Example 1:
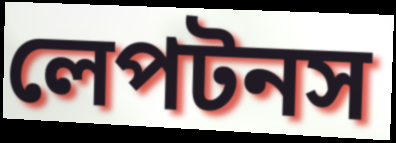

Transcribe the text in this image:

লেপটনস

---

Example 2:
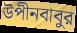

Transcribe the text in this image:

উপীনবাবুর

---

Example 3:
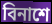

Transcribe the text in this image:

বিনাশে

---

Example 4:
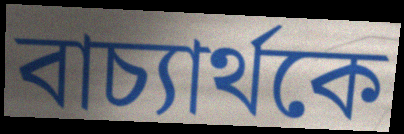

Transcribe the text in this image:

বাচ্যার্থকে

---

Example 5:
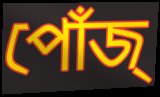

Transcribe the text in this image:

পোঁজ্